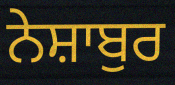
ਨੇਸ਼ਾਬੁਰ